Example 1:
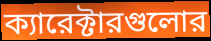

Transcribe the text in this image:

ক্যারেক্টারগুলোর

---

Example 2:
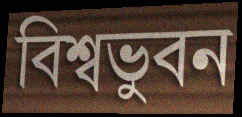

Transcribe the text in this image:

বিশ্বভুবন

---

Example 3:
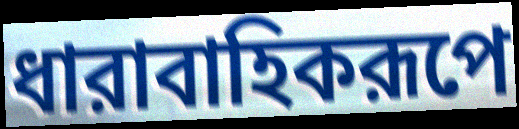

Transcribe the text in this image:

ধারাবাহিকরূপে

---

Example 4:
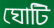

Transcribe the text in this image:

ঘোটি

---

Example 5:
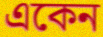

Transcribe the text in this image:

একেন